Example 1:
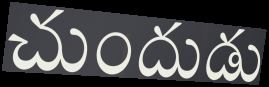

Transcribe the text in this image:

చుందుడు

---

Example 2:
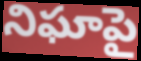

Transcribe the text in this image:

నిఘాపై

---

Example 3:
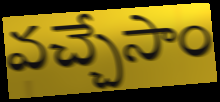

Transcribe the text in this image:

వచ్చేసాం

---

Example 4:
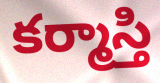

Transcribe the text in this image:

కర్మాస్తి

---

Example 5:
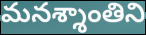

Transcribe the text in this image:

మనశ్శాంతిని